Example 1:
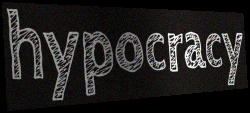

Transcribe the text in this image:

hypocracy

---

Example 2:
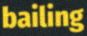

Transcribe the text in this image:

bailing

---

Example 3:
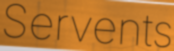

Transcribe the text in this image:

Servents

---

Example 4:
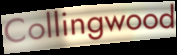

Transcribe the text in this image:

Collingwood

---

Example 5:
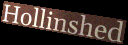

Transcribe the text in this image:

Hollinshed